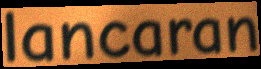
lancaran